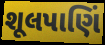
શૂલપાણિં